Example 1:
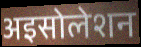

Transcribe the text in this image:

अइसोलेशन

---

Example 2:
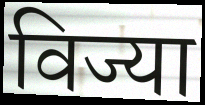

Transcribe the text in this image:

विज्या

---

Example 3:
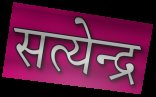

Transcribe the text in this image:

सत्येन्द्र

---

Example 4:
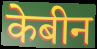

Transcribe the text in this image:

केबीन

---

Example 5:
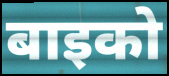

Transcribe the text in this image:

बाइको